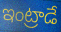
ఇంట్రాడే